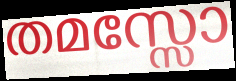
തമസ്സോ